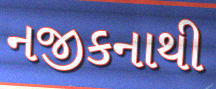
નજીકનાથી